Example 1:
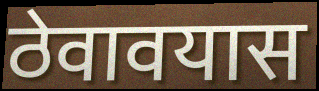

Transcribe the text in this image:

ठेवावयास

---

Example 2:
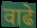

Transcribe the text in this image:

वाढे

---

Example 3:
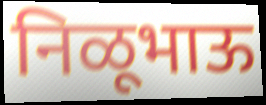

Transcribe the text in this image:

निळूभाऊ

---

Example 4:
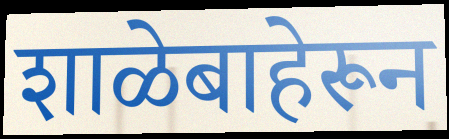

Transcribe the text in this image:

शाळेबाहेरून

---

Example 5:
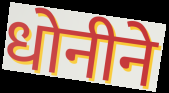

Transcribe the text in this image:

धोनीने